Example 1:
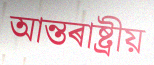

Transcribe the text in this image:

আন্তৰাষ্ট্ৰীয়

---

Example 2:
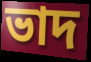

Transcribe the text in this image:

ভাদ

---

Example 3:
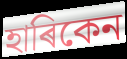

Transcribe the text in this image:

হাৰিকেন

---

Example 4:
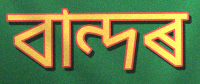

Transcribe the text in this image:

বান্দৰ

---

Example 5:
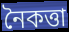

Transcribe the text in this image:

নৈকত্তা